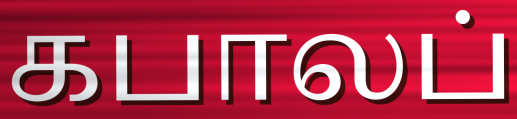
கபாலப்